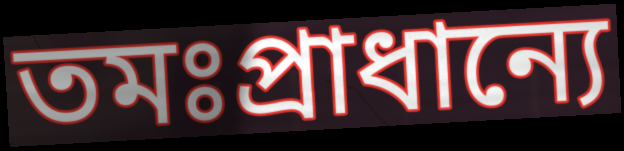
তমঃপ্রাধান্যে